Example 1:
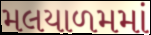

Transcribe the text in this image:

મલયાળમમાં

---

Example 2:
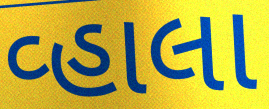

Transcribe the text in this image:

વ્હાલા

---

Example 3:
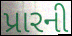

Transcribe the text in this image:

પ્રારની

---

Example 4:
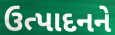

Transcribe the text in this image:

ઉત્પાદનને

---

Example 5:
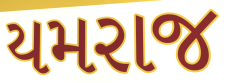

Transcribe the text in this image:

યમરાજ